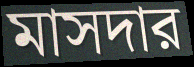
মাসদার